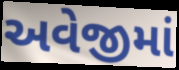
અવેજીમાં